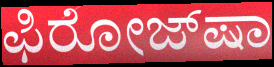
ಫಿರೋಜ್‌ಷಾ